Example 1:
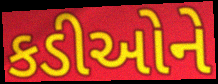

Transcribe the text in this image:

કડીઓને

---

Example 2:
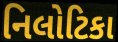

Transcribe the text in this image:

નિલોટિકા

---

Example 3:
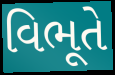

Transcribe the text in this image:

વિભૂતે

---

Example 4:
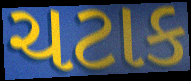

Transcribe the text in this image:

ચટાક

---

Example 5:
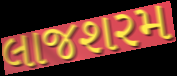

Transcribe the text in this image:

લાજશરમ